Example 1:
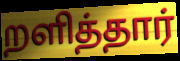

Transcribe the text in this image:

றளித்தார்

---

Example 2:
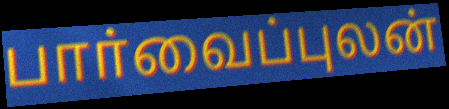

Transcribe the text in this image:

பார்வைப்புலன்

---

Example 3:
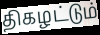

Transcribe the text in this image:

திகழட்டும்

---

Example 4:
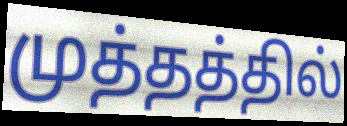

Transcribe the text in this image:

முத்தத்தில்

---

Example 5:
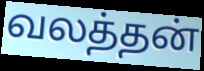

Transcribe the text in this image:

வலத்தன்